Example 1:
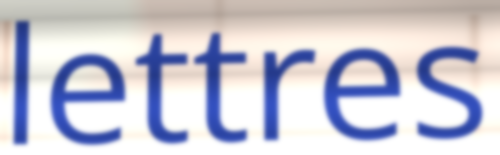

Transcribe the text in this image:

lettres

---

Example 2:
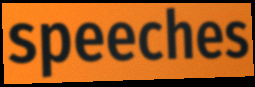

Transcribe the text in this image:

speeches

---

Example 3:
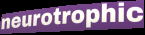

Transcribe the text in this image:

neurotrophic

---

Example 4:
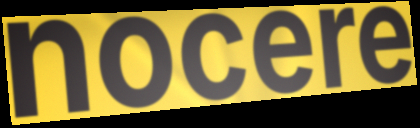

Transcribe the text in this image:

nocere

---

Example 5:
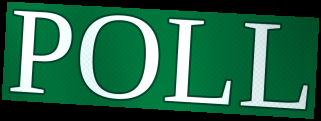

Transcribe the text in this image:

POLL